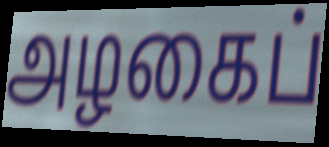
அழகைப்